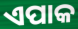
ଏପାକ